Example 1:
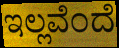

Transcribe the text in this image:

ಇಲ್ಲವೆಂದೆ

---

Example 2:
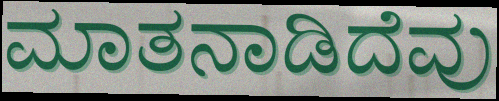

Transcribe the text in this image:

ಮಾತನಾಡಿದೆವು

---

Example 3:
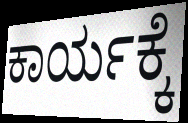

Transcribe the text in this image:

ಕಾರ್ಯಕ್ಕೆ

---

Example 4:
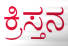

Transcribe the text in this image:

ಕ್ರಿಸ್ತನ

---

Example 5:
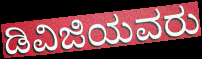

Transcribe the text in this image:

ಡಿವಿಜಿಯವರು